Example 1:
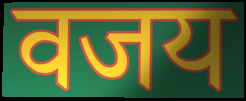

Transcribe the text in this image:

वजय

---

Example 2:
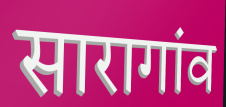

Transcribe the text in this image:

सारागांव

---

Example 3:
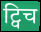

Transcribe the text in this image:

ट्विच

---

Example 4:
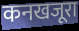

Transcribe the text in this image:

कनखजूरा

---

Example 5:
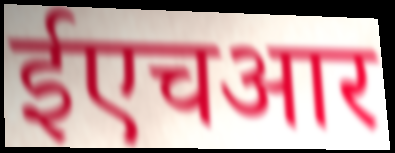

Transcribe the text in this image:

ईएचआर